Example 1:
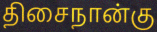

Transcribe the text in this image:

திசைநான்கு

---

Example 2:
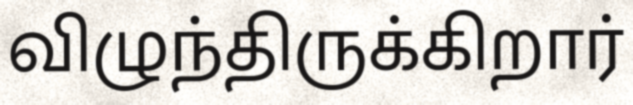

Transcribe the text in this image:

விழுந்திருக்கிறார்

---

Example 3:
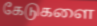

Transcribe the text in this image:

கேடுகளை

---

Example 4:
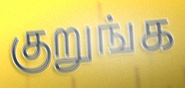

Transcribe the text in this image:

குறுங்க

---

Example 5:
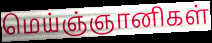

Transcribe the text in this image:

மெய்ஞ்ஞானிகள்